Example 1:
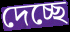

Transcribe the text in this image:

দেচ্ছে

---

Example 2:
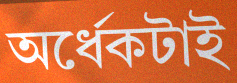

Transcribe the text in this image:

অর্ধেকটাই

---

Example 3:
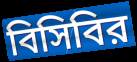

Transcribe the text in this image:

বিসিবির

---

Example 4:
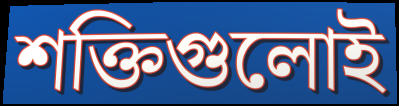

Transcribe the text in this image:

শক্তিগুলোই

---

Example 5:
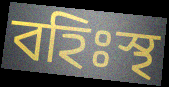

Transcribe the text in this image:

বহিঃস্থ